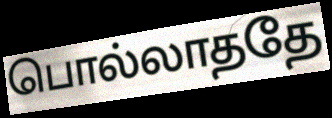
பொல்லாததே